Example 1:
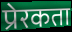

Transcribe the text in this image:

प्रेरकता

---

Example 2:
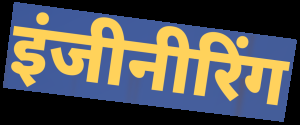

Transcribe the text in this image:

इंजीनीरिंग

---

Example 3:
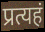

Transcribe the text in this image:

प्रत्यहं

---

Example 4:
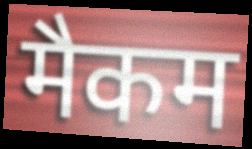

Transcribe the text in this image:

मैकम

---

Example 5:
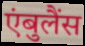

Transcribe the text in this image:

एंबुलैंस